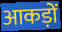
आकड़ों